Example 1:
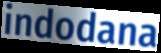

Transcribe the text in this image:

indodana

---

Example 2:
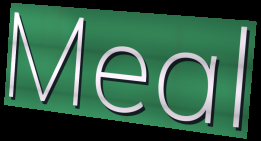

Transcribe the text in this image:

Meal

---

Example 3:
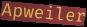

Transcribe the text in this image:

Apweiler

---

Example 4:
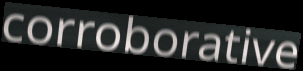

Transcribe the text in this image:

corroborative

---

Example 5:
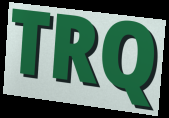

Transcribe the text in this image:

TRQ